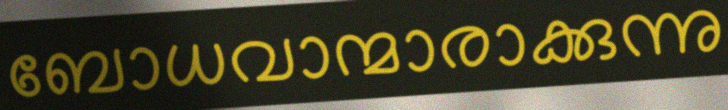
ബോധവാന്മാരാക്കുന്നു